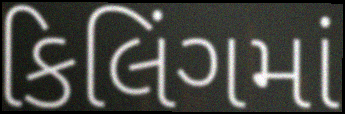
કિલિંગમાં